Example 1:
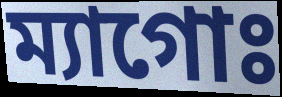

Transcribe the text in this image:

ম্যাগোঃ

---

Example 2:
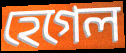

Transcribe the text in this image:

হেগেল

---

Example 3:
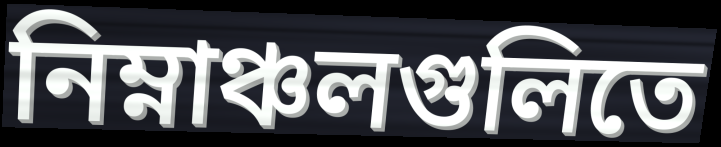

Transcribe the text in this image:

নিম্নাঞ্চলগুলিতে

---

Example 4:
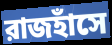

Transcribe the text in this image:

রাজহাঁসে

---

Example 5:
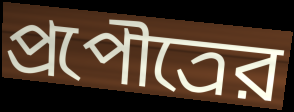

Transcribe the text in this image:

প্রপৌত্রের